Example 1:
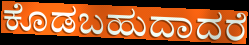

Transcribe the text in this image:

ಕೊಡಬಹುದಾದರೆ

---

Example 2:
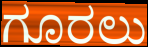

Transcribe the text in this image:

ಗೂರಲು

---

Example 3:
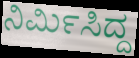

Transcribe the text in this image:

ನಿರ್ಮಿಸಿದ್ದ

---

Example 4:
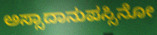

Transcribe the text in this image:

ಅಸ್ಸಾದಾನುಪಸ್ಸಿನೋ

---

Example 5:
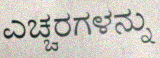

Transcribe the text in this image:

ಎಚ್ಚರಗಳನ್ನು